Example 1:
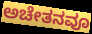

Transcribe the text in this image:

ಅಚೇತನವೂ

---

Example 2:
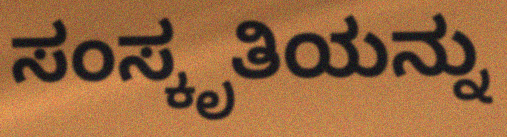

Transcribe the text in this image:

ಸಂಸ್ಕೃತಿಯನ್ನು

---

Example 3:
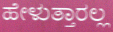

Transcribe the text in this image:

ಹೇಳುತ್ತಾರಲ್ಲ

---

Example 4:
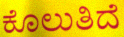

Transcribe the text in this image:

ಕೊಲುತಿದೆ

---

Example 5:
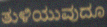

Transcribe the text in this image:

ತುಳಿಯುವುದೂ